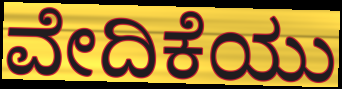
ವೇದಿಕೆಯು